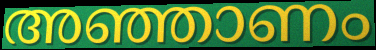
അഞ്ഞാണം